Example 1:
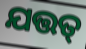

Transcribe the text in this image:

ଯତ୍ତତ୍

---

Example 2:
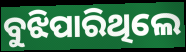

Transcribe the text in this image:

ବୁଝିପାରିଥିଲେ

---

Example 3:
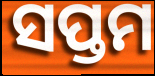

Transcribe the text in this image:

ସପ୍ତମ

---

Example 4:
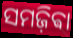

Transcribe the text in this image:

ସମଜ଼ିଵା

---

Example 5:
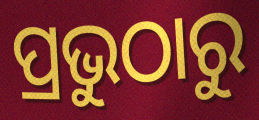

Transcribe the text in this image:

ପ୍ରଭୁଠାରୁ